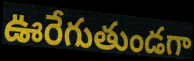
ఊరేగుతుండగా